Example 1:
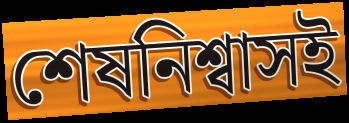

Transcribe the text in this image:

শেষনিশ্বাসই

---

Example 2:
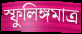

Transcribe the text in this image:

স্ফুলিঙ্গমাত্র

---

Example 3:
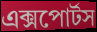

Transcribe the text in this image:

এক্সপোর্টস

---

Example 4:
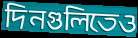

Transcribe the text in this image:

দিনগুলিতেও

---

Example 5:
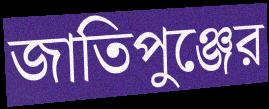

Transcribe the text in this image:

জাতিপুঞ্জের